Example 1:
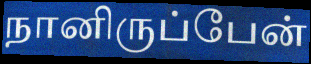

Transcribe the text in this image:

நானிருப்பேன்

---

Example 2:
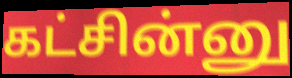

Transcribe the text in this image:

கட்சின்னு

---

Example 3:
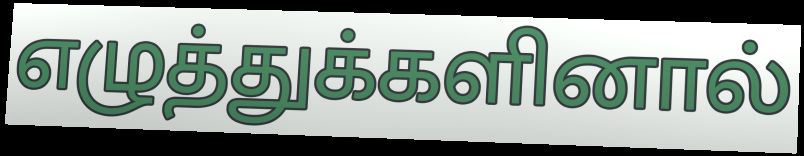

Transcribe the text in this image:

எழுத்துக்களினால்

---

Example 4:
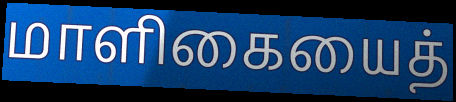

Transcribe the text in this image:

மாளிகையைத்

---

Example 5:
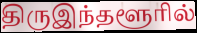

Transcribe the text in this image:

திருஇந்தளூரில்